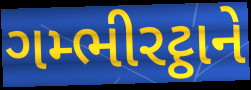
ગમ્ભીરટ્ઠાને